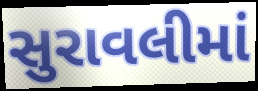
સુરાવલીમાં